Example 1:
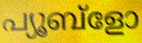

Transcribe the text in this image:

പ്യൂബ്ളോ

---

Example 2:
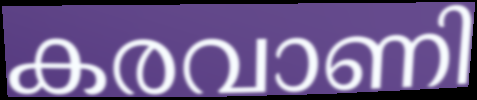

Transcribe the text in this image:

കരവാണി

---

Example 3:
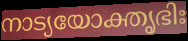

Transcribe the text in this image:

നാട്യയോക്തൃഭിഃ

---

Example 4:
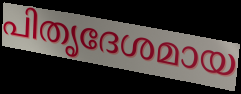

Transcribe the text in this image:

പിതൃദേശമായ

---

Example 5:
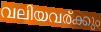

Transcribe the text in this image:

വലിയവര്ക്കും